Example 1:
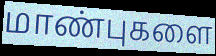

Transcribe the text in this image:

மாண்புகளை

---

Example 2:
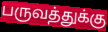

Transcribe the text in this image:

பருவத்துக்கு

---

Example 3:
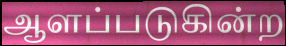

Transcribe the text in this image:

ஆளப்படுகின்ற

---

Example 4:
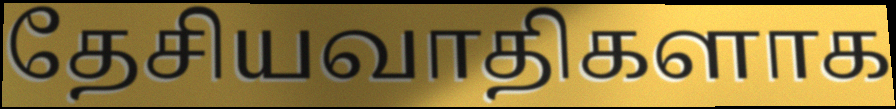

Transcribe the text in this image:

தேசியவாதிகளாக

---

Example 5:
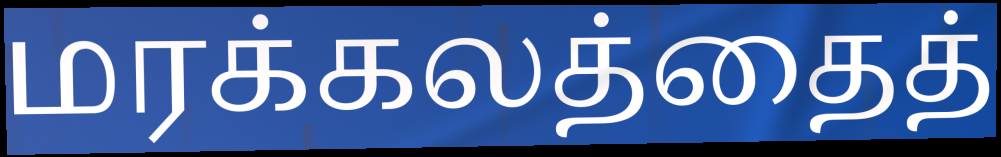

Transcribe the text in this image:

மரக்கலத்தைத்